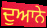
ਦੁਆਨੇ